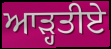
ਆੜ੍ਹਤੀਏ